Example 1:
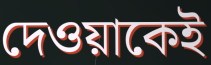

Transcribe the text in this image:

দেওয়াকেই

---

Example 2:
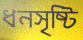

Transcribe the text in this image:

ধনসৃষ্টি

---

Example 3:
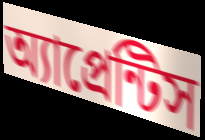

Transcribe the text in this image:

অ্যাপ্রেন্টিস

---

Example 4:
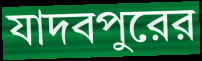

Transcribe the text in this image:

যাদবপুরের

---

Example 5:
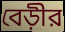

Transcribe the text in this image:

বেড়ীর